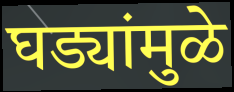
घड्यांमुळे